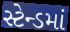
સ્ટેન્ડમાં